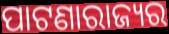
ପାଟଣାରାଜ୍ୟର